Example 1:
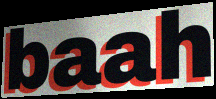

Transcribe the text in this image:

baah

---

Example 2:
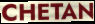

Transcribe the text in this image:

CHETAN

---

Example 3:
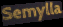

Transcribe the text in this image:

Semylla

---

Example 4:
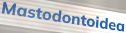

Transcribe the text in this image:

Mastodontoidea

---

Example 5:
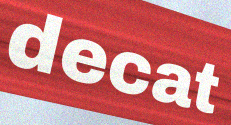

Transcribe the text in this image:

decat